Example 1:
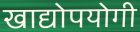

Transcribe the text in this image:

खाद्योपयोगी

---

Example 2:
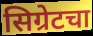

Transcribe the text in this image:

सिग्रेटचा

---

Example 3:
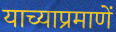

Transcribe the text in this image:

याच्याप्रमाणें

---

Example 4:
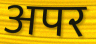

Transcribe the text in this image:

अपर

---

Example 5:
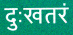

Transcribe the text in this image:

दुःखतरं